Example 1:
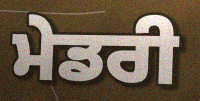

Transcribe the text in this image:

ਮੇਡਰੀ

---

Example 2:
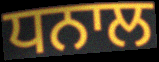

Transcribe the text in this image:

ਧਨਾਲ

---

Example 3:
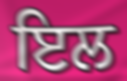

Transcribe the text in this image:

ਇਲ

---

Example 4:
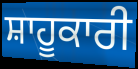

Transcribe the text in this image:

ਸ਼ਾਹੂਕਾਰੀ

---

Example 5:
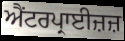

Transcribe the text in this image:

ਐਂਟਰਪ੍ਰਾਈਜ਼ਜ਼